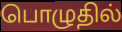
பொழுதில்